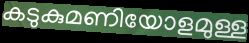
കടുകുമണിയോളമുള്ള